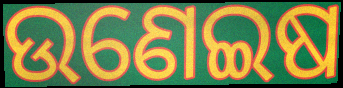
ଉଣେଇଷ